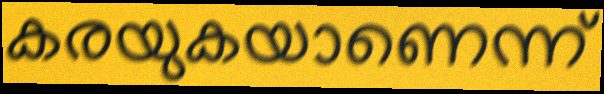
കരയുകയാണെന്ന്